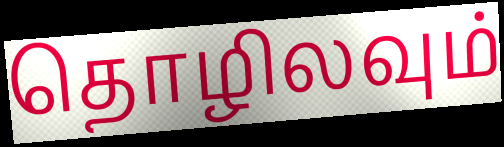
தொழிலவும்